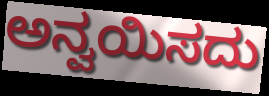
ಅನ್ವಯಿಸದು